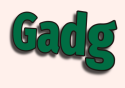
Gadg